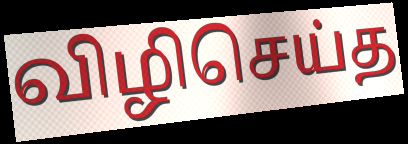
விழிசெய்த